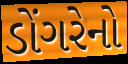
ડોંગરેનો